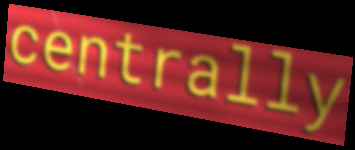
centrally